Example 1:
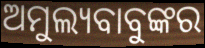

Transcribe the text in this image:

ଅମୁଲ୍ୟବାବୁଙ୍କର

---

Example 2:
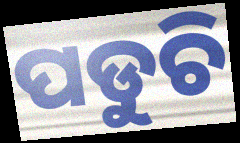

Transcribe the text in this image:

ପଡୁଚି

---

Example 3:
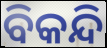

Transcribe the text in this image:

ବିକନ୍ଦି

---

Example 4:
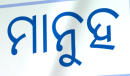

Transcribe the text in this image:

ମାନୁହ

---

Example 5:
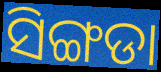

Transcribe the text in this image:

ସିଙ୍ଗଡା